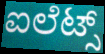
ಐಲೆಟ್ಸ್